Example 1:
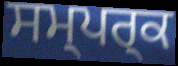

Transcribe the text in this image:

ਸਮ੍ਪਰ੍ਕ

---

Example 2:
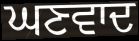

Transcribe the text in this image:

ਘਣਵਾਦ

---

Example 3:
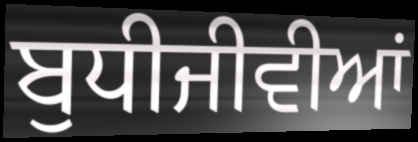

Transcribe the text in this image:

ਬੁਧੀਜੀਵੀਆਂ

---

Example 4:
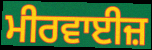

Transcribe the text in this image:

ਮੀਰਵਾਈਜ਼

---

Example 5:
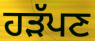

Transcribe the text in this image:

ਹੜੱਪਣ